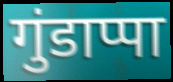
गुंडाप्पा